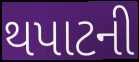
થપાટની